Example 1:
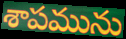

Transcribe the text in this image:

శాపమును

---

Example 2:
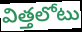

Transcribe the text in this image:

విత్తలోటు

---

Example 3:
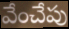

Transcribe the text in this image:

వేంచేపు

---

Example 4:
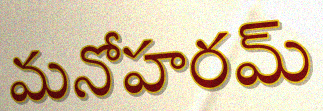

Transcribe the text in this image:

మనోహరమ్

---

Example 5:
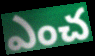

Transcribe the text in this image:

ఎంచ